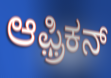
ಆಫ಼್ರಿಕನ್